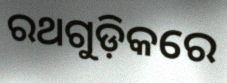
ରଥଗୁଡ଼ିକରେ